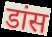
डांस